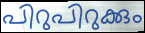
പിറുപിറുക്കും